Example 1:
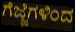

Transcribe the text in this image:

ಗೆಜ್ಜೆಗಳಿಂದ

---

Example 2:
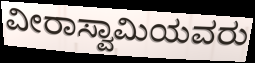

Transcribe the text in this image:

ವೀರಾಸ್ವಾಮಿಯವರು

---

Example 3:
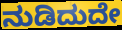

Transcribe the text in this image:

ನುಡಿದುದೇ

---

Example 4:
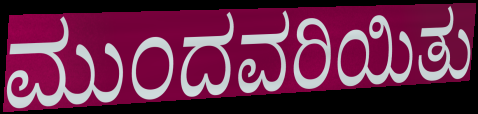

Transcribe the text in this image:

ಮುಂದವರಿಯಿತು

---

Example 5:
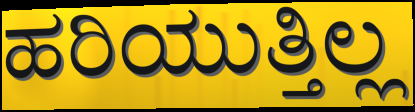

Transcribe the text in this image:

ಹರಿಯುತ್ತಿಲ್ಲ